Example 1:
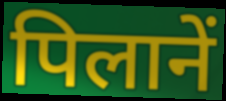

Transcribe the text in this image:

पिलानें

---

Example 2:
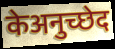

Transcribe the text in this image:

केअनुच्छेद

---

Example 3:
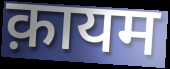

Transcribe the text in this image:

क़ायम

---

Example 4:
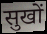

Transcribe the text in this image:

सुखों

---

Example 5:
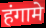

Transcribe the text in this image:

हंगामे